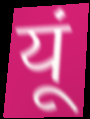
यूं